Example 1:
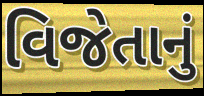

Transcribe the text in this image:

વિજેતાનું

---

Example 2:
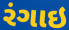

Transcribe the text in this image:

રંગાઇ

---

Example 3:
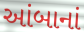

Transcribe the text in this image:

આંબાનાં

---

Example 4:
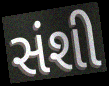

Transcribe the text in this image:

સંશી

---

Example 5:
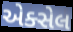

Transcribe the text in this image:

એક્સેલ